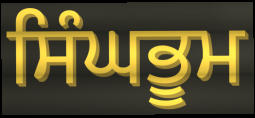
ਸਿੰਘਭੂਮ